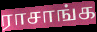
ராசாங்க